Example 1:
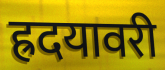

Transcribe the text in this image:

ह्रदयावरी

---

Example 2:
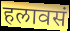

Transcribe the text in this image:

हलावसं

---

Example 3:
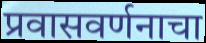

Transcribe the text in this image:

प्रवासवर्णनाचा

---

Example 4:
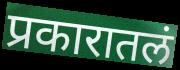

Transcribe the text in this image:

प्रकारातलं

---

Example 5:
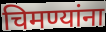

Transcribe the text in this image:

चिमण्यांना